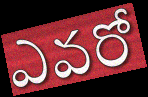
ఎవరో